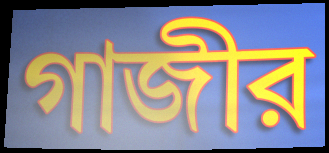
গাজীর